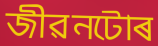
জীৱনটোৰ